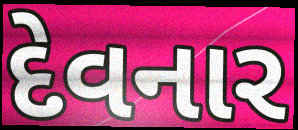
દેવનાર